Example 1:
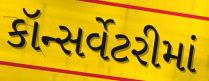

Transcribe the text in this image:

કૉન્સર્વેટરીમાં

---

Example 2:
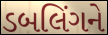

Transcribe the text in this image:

ડબલિંગને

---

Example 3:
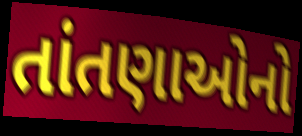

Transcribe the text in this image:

તાંતણાઓનો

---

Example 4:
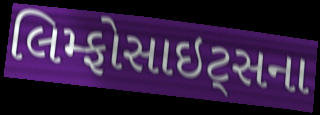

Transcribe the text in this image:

લિમ્ફોસાઇટ્સના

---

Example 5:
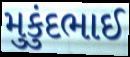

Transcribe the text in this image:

મુકુંદભાઈ